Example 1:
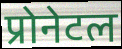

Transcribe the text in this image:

प्रोनेटल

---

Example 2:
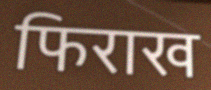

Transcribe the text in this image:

फिराख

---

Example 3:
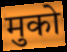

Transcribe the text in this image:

मुको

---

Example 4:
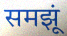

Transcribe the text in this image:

समझूं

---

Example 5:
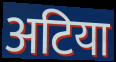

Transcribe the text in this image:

अटिया